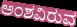
ಅಂಶವಿರುವ